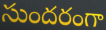
సుందరంగా